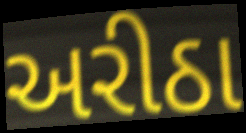
અરીઠા